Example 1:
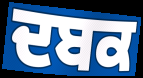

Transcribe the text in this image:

ਦਬਕ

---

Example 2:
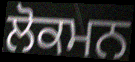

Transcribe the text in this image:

ਲੋਕਮਨ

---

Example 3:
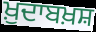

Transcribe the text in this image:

ਖ਼ੁਦਾਬਖ਼ਸ਼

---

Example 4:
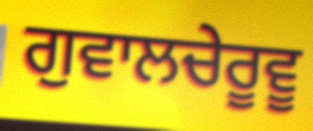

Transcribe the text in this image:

ਗੁਵਾਲਚੇਰੂਵੂ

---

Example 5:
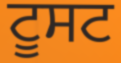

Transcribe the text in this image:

ਟੂਸਟ